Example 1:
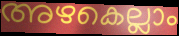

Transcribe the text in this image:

അഴകെല്ലാം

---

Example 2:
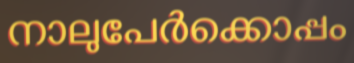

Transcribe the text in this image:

നാലുപേർക്കൊപ്പം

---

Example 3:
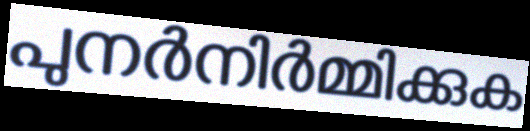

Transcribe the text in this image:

പുനർനിർമ്മിക്കുക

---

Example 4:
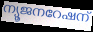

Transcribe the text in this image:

ന്യൂജനറേഷന്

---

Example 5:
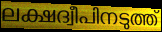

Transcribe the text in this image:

ലക്ഷദ്വീപിനടുത്ത്